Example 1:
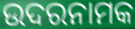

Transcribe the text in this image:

ଉଦରନାମକ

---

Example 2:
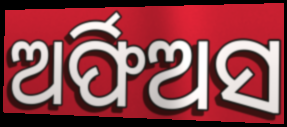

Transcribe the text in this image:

ଅର୍ଫିଅସ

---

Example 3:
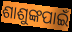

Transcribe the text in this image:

ଶାଶୁଙ୍କପାଇଁ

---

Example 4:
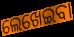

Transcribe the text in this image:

ଲେଖେଇବା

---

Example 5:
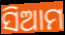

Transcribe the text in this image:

ସିଆମ